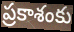
ప్రకాశంకు